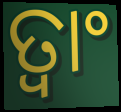
ତ୍ୱାଂ